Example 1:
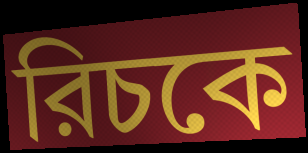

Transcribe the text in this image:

রিচকে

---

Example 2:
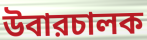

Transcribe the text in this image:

উবারচালক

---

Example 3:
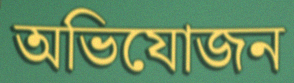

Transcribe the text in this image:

অভিযোজন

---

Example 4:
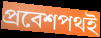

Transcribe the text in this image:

প্রবেশপথই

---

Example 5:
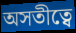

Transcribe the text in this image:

অসতীত্বে